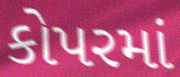
કોપરમાં